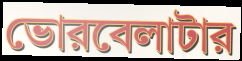
ভোরবেলাটার